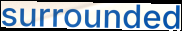
surrounded